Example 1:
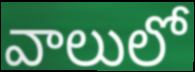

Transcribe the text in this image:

వాలులో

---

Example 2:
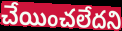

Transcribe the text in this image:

చేయించలేదని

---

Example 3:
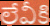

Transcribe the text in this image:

లేవీకి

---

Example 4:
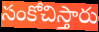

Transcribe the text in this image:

సంకోచిస్తారు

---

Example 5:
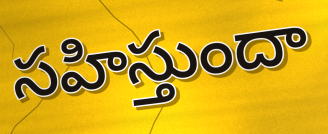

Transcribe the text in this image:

సహిస్తుందా